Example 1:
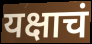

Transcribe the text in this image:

यक्षाचं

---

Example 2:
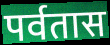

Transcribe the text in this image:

पर्वतास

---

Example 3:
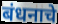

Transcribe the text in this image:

बंधनाचे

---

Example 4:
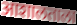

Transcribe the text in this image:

आशालताला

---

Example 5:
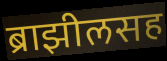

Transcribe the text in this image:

ब्राझीलसह